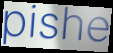
pishe